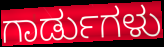
ಗಾರ್ಡುಗಳು